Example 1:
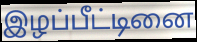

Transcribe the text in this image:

இழப்பீட்டினை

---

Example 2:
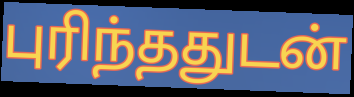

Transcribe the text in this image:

புரிந்ததுடன்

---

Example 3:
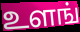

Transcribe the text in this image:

உளங்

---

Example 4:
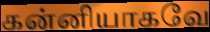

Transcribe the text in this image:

கன்னியாகவே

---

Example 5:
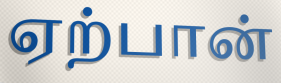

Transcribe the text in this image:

ஏற்பான்